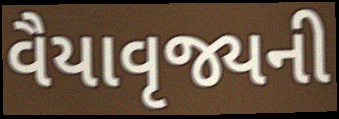
વૈયાવૃજ્યની